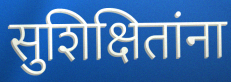
सुशिक्षितांना